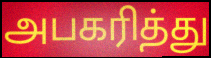
அபகரித்து